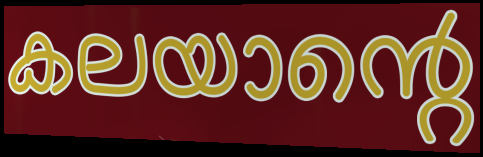
കലയാന്റെ